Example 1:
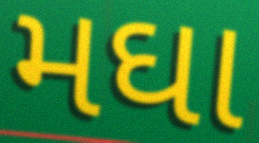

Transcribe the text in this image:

મઘા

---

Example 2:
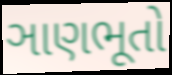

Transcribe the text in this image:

ઞાણભૂતો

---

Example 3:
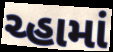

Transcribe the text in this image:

ચ્હામાં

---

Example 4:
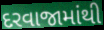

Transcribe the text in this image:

દરવાજામાંથી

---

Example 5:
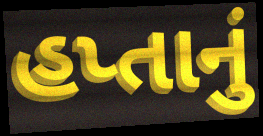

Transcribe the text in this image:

હપ્તાનું